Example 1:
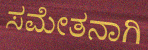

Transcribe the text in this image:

ಸಮೇತನಾಗಿ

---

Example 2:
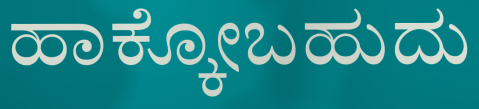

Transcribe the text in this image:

ಹಾಕ್ಕೋಬಹುದು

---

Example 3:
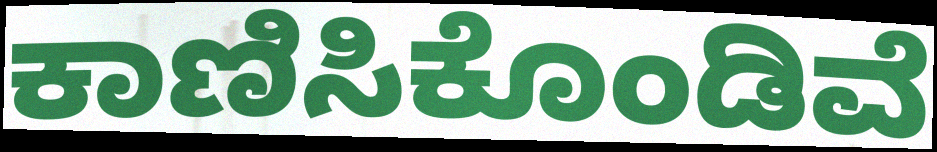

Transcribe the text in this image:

ಕಾಣಿಸಿಕೊಂಡಿವೆ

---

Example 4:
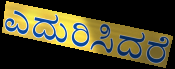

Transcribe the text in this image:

ಎದುರಿಸಿದರೆ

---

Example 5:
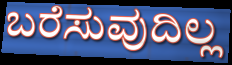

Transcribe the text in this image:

ಬರೆಸುವುದಿಲ್ಲ